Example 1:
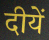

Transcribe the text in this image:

दीयें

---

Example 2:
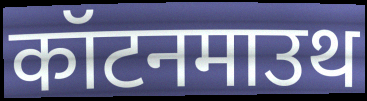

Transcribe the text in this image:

कॉटनमाउथ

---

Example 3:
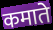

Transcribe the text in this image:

कमाते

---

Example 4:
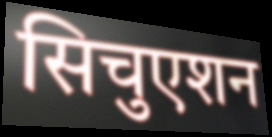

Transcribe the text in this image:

सिचुएशन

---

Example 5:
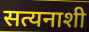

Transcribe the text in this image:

सत्यनाशी